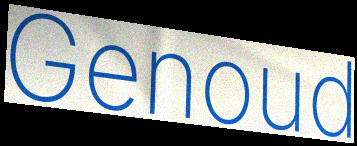
Genoud